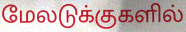
மேலடுக்குகளில்